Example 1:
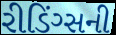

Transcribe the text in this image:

રીડિંગ્સની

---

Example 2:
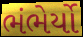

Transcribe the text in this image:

ભંભેર્યો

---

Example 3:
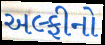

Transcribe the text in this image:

અલ્ફીનો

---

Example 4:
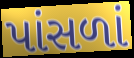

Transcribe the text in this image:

પાંસળાં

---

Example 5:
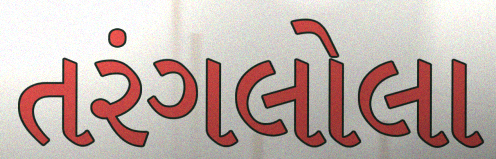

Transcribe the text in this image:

તરંગલોલા